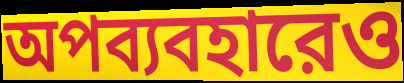
অপব্যবহারেও